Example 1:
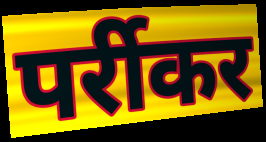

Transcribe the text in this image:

पर्रीकर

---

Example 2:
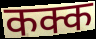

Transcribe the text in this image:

कक्क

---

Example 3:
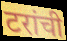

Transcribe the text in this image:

टरांची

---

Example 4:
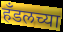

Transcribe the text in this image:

हँडलच्या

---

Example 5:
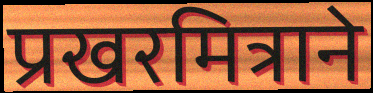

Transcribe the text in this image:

प्रखरमित्राने